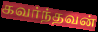
கவர்ந்தவன்